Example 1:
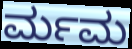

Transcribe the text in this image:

ರ್ಮಮ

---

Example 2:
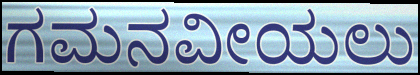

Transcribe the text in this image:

ಗಮನವೀಯಲು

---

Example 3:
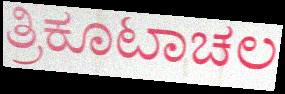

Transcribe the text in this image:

ತ್ರಿಕೂಟಾಚಲ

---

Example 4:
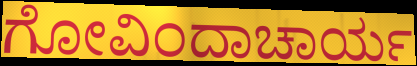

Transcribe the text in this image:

ಗೋವಿಂದಾಚಾರ್ಯ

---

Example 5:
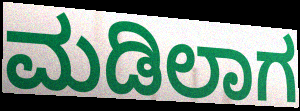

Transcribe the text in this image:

ಮಡಿಲಾಗ